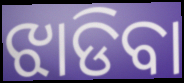
ଝାଡିବା